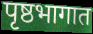
पृष्ठभागात